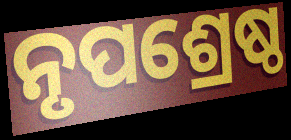
ନୃପଶ୍ରେଷ୍ଠ